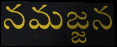
నమజ్జన